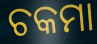
ଚକମା